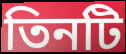
তিনটি